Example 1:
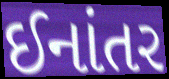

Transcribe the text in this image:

ઈનાંતર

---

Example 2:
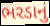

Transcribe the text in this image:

ભરડાનું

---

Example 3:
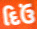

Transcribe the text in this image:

દિઉં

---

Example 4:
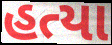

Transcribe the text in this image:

હત્યા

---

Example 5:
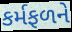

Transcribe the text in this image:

કર્મફળને